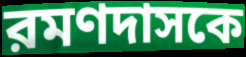
রমণদাসকে